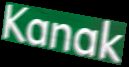
Kanak